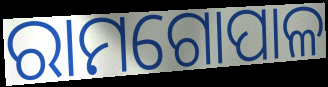
ରାମଗୋପାଳ